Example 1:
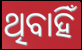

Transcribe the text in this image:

ଥିବାହିଁ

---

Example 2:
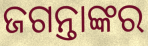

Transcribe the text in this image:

ଜଗନ୍ତାଙ୍କର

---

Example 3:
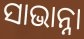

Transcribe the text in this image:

ସାଭାନ୍ନା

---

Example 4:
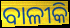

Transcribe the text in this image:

ବାଳୀକି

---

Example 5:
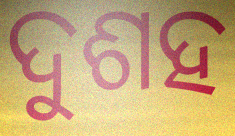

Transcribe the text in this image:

ଦୁଶହ